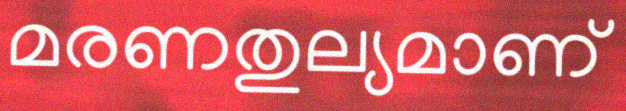
മരണതുല്യമാണ്